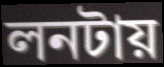
লনটায়